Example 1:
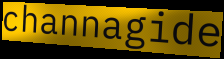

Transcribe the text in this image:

channagide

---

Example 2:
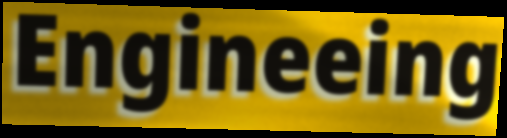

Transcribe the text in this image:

Engineeing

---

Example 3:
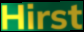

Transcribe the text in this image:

Hirst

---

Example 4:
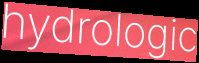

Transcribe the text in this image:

hydrologic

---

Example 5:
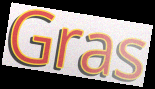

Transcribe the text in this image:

Gras